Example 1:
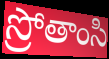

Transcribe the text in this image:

స్రోతాంసి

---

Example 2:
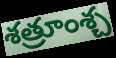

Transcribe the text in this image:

శత్రూంశ్చ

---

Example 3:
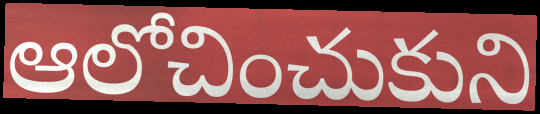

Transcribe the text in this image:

ఆలోచించుకుని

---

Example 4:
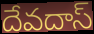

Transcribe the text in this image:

దేవదాస్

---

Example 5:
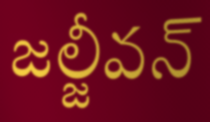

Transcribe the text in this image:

జల్జీవన్